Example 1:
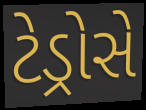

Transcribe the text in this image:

ટેડ્રોસે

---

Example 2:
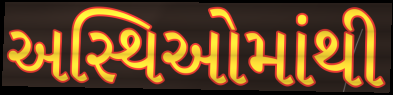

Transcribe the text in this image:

અસ્થિઓમાંથી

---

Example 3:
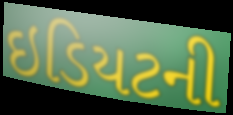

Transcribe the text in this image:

ઇડિયટની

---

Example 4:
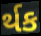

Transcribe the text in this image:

ર્થક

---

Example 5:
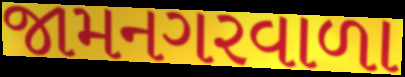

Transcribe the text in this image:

જામનગરવાળા